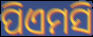
ପିଏମସି